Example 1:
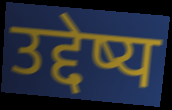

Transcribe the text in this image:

उद्देष्य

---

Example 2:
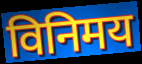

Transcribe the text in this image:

विनिमय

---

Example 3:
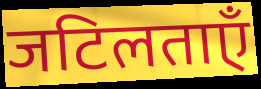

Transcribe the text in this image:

जटिलताएँ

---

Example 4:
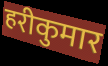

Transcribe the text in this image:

हरीकुमार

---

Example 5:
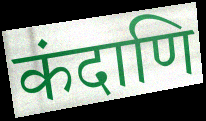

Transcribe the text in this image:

कंदाणि